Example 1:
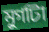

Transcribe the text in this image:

মুর্গাটা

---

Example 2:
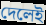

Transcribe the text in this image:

দেলেই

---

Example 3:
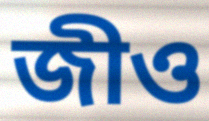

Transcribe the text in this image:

জীও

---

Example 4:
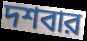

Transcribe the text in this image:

দশবার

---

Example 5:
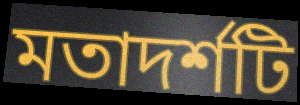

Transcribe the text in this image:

মতাদর্শটি